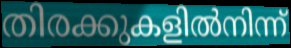
തിരക്കുകളിൽനിന്ന്